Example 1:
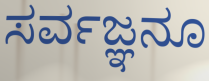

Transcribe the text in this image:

ಸರ್ವಜ್ಞನೂ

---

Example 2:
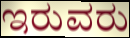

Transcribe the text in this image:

ಇರುವರು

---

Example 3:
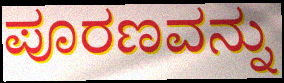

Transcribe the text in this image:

ಪೂರಣವನ್ನು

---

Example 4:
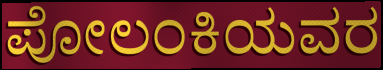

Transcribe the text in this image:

ಪೋಲಂಕಿಯವರ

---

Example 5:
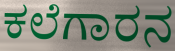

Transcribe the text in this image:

ಕಲೆಗಾರನ